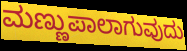
ಮಣ್ಣುಪಾಲಾಗುವುದು